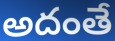
అదంతే